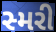
સ્મરી